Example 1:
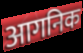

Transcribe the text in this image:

आगनिक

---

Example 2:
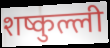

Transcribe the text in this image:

शष्कुल्ली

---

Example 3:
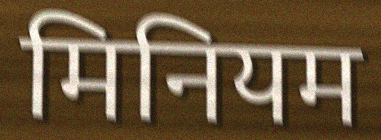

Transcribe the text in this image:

मिनियम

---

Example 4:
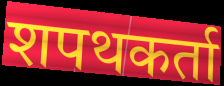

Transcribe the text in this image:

शपथकर्ता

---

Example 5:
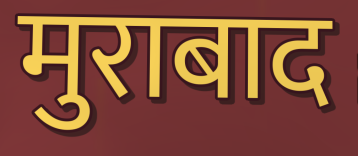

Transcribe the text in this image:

मुराबाद